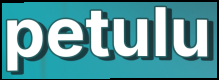
petulu